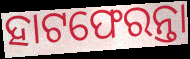
ହାଟଫେରନ୍ତା